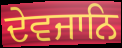
ਦੇਵਜਾਨਿ